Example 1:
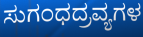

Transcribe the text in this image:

ಸುಗಂಧದ್ರವ್ಯಗಳ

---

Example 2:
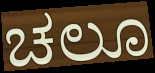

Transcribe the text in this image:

ಚಲೂ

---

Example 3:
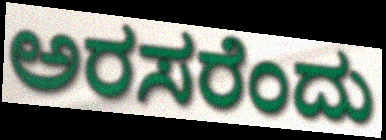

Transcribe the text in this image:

ಅರಸರೆಂದು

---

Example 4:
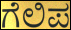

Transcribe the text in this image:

ಗೆಲಿಪ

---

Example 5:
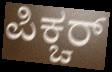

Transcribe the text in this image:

ಪಿಕ್ಚರ್